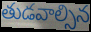
తుడవాల్సిన